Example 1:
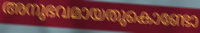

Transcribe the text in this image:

അനുഭവമായതുകൊണ്ടോ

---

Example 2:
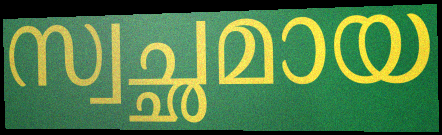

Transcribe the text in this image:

സ്വച്ഛമായ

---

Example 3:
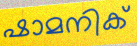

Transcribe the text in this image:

ഷാമനിക്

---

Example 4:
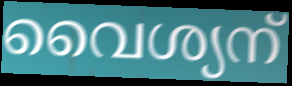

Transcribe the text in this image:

വൈശ്യന്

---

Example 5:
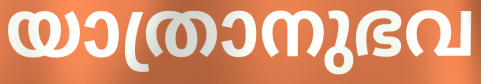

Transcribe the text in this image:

യാത്രാനുഭവ